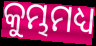
କୁମ୍ଭମଧ୍ୟ